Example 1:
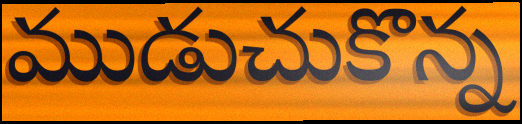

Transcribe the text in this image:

ముడుచుకొన్న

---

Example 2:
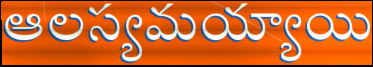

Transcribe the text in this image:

ఆలస్యమయ్యాయి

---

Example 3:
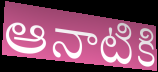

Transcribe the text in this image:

ఆనాటికి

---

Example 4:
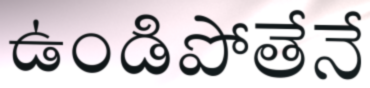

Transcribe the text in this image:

ఉండిపోతేనే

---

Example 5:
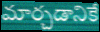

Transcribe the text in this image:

మార్చడానికే